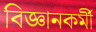
বিজ্ঞানকর্মী